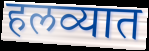
हलव्यात